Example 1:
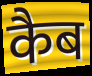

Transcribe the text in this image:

कैब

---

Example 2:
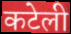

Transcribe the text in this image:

कटेली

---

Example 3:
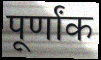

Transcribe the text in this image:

पूर्णांक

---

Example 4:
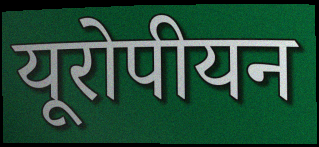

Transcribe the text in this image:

यूरोपीयन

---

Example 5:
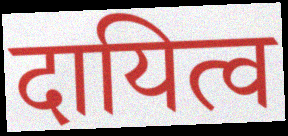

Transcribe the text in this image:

दायित्व